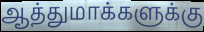
ஆத்துமாக்களுக்கு